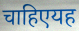
चाहिएयह